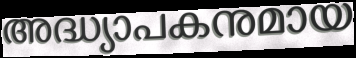
അദ്ധ്യാപകനുമായ